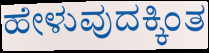
ಹೇಳುವುದಕ್ಕಿಂತ